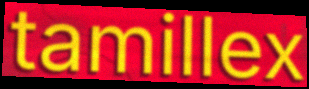
tamillex